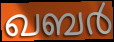
ഖബർ